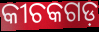
କୀଚକଗଡ଼